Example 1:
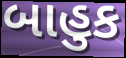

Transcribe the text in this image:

બાહુક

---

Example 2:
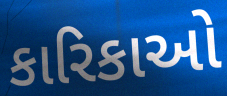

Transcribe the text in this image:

કારિકાઓ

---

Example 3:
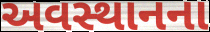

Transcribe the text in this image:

અવસ્થાનના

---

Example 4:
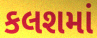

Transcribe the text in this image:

કલશમાં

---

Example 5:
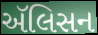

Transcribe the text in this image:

ઍલિસન